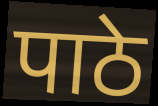
पाठे